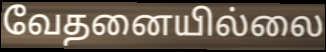
வேதனையில்லை